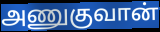
அணுகுவான்